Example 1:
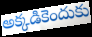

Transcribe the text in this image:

అక్కడికెందుకు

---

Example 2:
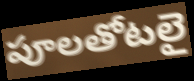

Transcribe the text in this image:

పూలతోటలై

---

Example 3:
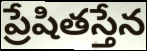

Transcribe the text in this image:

ప్రేషితస్తేన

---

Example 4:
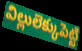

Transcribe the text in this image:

విల్లులెక్కుపెట్టి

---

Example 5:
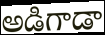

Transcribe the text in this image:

అడిగాడా